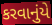
કરવાનુંયે